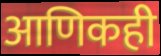
आणिकही